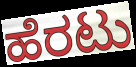
ಹೆರಟು